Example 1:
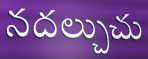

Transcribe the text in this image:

నదల్చుచు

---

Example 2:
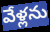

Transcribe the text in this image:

వేళ్లను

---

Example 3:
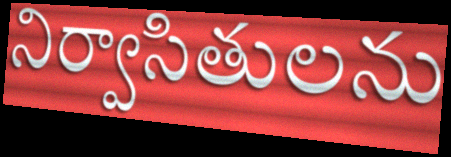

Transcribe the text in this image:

నిర్వాసితులను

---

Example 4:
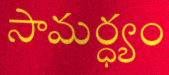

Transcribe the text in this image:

సామర్ధ్యం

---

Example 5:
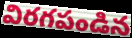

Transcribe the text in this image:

విరగపండిన